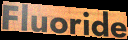
Fluoride